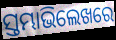
ସ୍ତମ୍ଭାଭିଲେଖରେ